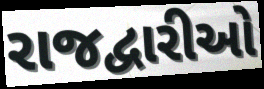
રાજદ્વારીઓ